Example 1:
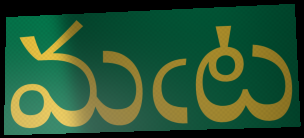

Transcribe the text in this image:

మఁట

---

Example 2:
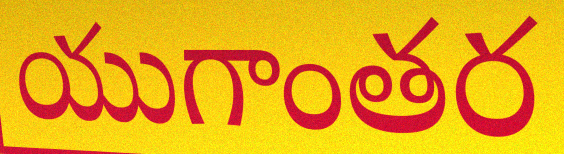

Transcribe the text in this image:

యుగాంతర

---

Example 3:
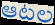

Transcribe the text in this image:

ఆటల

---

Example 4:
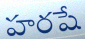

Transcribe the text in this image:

హరషే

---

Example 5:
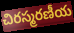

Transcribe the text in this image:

చిరస్మరణీయ